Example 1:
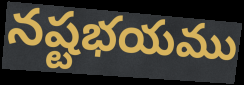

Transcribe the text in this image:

నష్టభయము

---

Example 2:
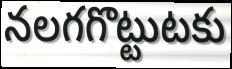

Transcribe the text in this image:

నలగగొట్టుటకు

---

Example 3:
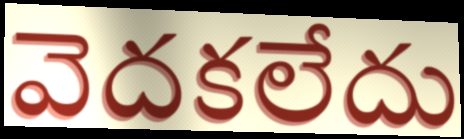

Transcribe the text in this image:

వెదకలేదు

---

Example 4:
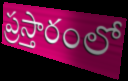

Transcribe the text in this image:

ప్రస్తారంలో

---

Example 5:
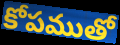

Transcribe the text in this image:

కోపముతో